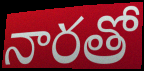
నారతో